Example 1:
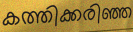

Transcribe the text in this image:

കത്തിക്കരിഞ്ഞ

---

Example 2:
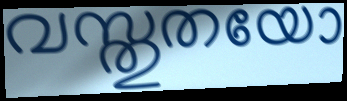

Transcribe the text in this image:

വസ്തുതയോ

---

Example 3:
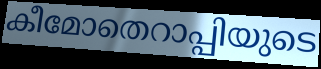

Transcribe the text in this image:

കീമോതെറാപ്പിയുടെ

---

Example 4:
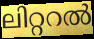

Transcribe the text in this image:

ലിറ്ററൽ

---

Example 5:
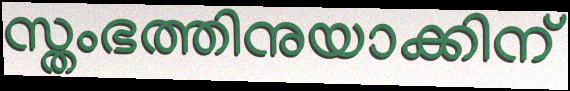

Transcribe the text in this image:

സ്തംഭത്തിനുയാക്കിന്